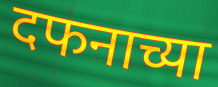
दफनाच्या